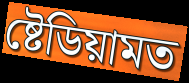
ষ্টেডিয়ামত